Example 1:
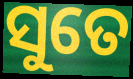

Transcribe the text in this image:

ସୁତେ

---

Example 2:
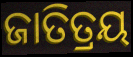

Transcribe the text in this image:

ଜାତିତ୍ରୟ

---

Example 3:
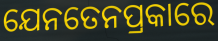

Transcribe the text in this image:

ଯେନତେନପ୍ରକାରେ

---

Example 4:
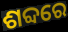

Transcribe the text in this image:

ଶବ୍ଦରେ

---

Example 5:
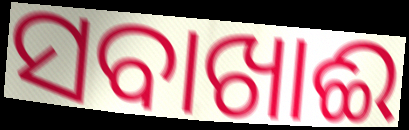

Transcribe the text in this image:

ସବାଖାଈ